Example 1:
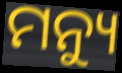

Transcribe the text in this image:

ମନ୍ୟୁ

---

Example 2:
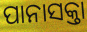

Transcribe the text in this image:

ପାନାସକ୍ତା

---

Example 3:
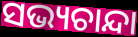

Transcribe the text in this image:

ସଭ୍ୟଚାନ୍ଦା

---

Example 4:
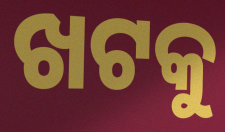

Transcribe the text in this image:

ଖଟକୁ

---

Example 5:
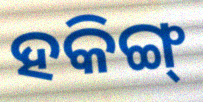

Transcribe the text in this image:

ହକିଙ୍ଗ୍